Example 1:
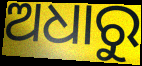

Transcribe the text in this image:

ଅଧାରୁ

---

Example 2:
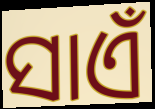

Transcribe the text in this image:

ସାଏଁ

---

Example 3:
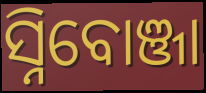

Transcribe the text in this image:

ସ୍ନିବୋଞ୍ଜା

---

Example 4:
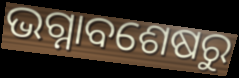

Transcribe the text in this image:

ଭଗ୍ନାବଶେଷରୁ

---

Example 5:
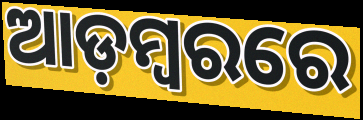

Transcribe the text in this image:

ଆଡ଼ମ୍ୱରରେ